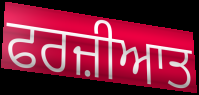
ਫਰਜ਼ੀਆਤ